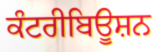
ਕੰਟਰੀਬਿਊਸ਼ਨ